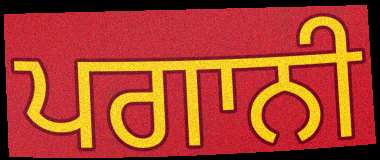
ਪਗਾਨੀ